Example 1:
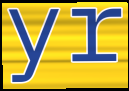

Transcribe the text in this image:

yr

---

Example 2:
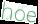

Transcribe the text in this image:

hoe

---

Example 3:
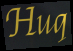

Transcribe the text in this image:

Huq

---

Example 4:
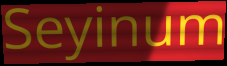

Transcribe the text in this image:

Seyinum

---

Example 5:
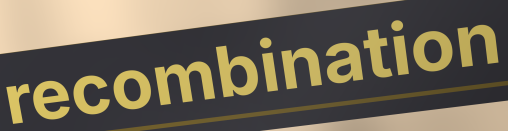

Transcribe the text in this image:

recombination